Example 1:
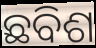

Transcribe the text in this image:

ଛବିଶ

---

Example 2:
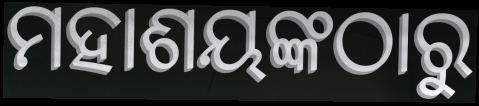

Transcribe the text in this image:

ମହାଶୟଙ୍କଠାରୁ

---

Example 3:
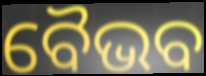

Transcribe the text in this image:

ବୈଭବ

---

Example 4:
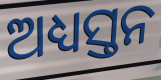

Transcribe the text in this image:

ଅଧ୍ୟସ୍ତନ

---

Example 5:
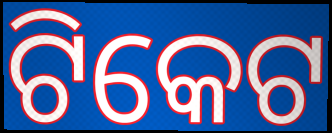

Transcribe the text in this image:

ଟିକେଟ